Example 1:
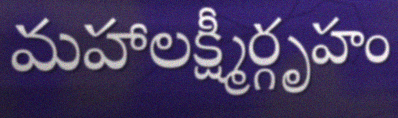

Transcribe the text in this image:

మహాలక్ష్మీర్గృహం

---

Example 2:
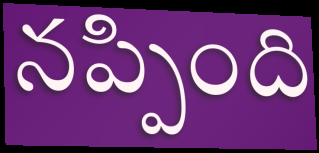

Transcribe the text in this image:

నప్పింది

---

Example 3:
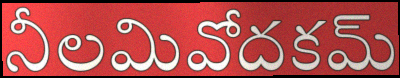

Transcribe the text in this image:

నీలమివోదకమ్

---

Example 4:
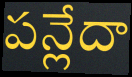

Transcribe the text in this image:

పన్లేదా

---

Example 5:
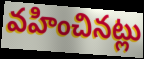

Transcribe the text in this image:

వహించినట్లు